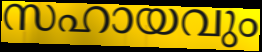
സഹായവും